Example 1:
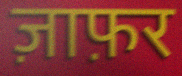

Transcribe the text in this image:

ज़ाफ़र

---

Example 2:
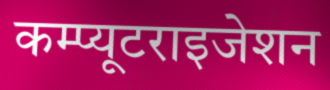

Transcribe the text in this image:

कम्प्यूटराइजेशन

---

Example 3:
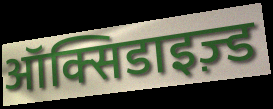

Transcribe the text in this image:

ऑक्सिडाइज़्ड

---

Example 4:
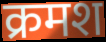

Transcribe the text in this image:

क्रमश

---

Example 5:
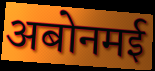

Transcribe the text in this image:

अबोनमई